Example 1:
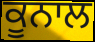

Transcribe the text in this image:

ਕੂਨਾਲ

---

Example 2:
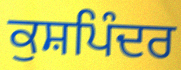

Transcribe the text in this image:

ਕੁਸ਼ਪਿੰਦਰ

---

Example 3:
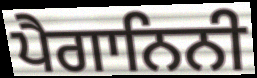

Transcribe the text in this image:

ਪੈਗਾਨਿਨੀ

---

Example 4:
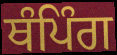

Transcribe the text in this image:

ਥੰਪਿੰਗ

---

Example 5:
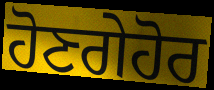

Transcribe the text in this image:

ਹੋਣਗੇਹੋਰ